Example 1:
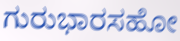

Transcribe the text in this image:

ಗುರುಭಾರಸಹೋ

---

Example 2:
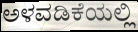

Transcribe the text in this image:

ಅಳವಡಿಕೆಯಲ್ಲಿ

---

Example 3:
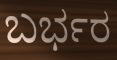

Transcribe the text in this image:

ಬರ್ಭರ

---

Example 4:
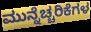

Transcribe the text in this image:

ಮುನ್ನೆಚ್ಚರಿಕೆಗಳ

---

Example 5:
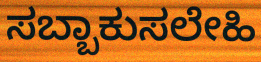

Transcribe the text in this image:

ಸಬ್ಬಾಕುಸಲೇಹಿ